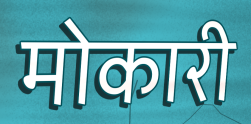
मोकारी